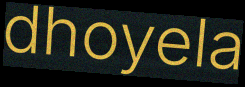
dhoyela